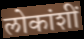
लोकांशीं